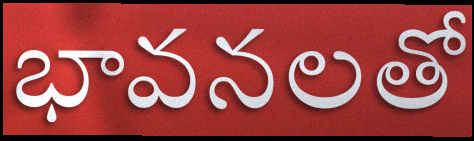
భావనలతో